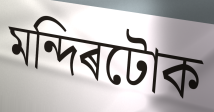
মন্দিৰটোক